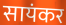
सायंकर